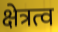
क्षेत्रत्व